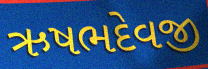
ઋષભદેવજી